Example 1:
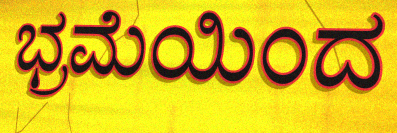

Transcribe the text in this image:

ಭ್ರಮೆಯಿಂದ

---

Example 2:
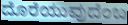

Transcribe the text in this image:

ದೊರೆಯುವುದೆಂಬ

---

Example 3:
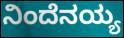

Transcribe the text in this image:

ನಿಂದೆನಯ್ಯ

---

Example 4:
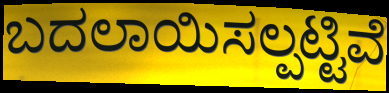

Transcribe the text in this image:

ಬದಲಾಯಿಸಲ್ಪಟ್ಟಿವೆ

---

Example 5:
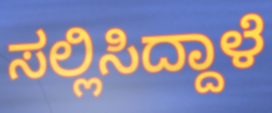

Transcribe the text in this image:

ಸಲ್ಲಿಸಿದ್ದಾಳೆ